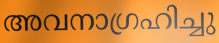
അവനാഗ്രഹിച്ചു